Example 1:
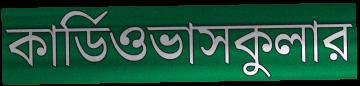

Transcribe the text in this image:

কার্ডিওভাসকুলার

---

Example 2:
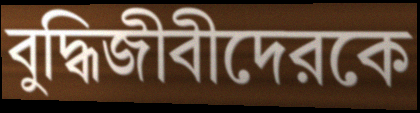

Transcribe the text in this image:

বুদ্ধিজীবীদেরকে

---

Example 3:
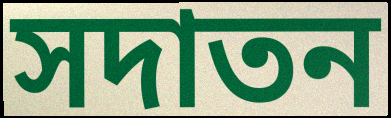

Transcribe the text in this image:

সদাতন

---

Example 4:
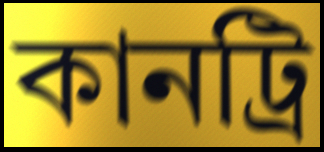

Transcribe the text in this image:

কানট্রি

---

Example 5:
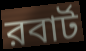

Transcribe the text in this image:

রবার্ট